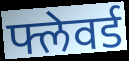
फ्लेवर्ड